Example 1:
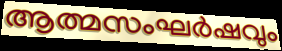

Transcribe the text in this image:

ആത്മസംഘർഷവും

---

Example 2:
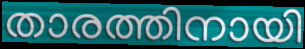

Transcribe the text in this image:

താരത്തിനായി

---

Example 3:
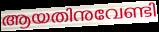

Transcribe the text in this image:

ആയതിനുവേണ്ടി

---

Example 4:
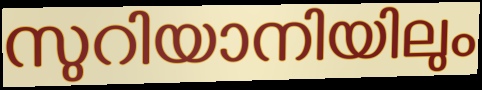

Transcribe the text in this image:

സുറിയാനിയിലും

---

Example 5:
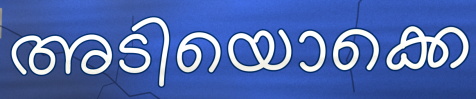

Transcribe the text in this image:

അടിയൊക്കെ